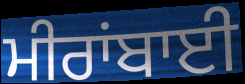
ਮੀਰਾਂਬਾਈ